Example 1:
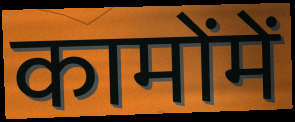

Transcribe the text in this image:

कामोंमें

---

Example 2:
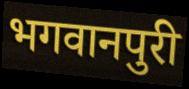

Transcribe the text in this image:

भगवानपुरी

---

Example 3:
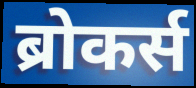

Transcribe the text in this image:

ब्रोकर्स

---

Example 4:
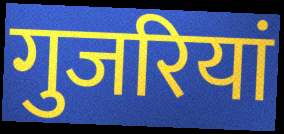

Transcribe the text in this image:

गुजरियां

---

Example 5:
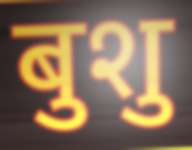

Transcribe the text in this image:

बुशु